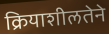
क्रियाशीलतेने